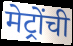
मेट्रोंची